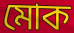
মোক